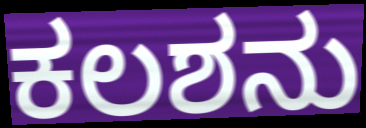
ಕಲಶನು